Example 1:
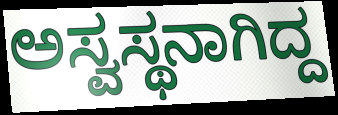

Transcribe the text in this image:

ಅಸ್ವಸ್ಥನಾಗಿದ್ದ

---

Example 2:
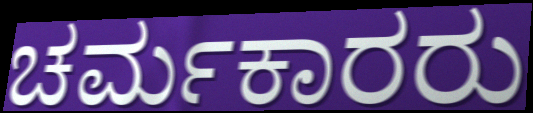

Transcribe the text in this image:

ಚರ್ಮಕಾರರು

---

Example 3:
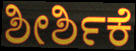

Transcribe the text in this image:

ಶೀರ್ಶಿಕೆ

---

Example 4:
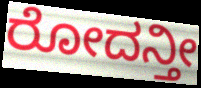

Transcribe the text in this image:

ರೋದನ್ತೀ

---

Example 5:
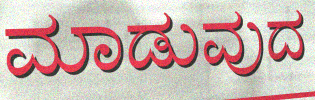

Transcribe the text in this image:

ಮಾಡುವುದ